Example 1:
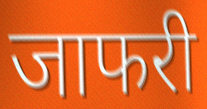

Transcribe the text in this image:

जाफरी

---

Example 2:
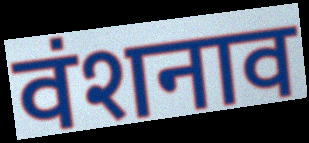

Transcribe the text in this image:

वंशनाव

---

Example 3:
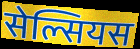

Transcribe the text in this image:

सेल्सियस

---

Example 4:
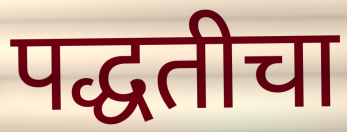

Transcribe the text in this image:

पद्धतीचा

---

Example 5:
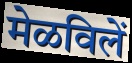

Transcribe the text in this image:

मेळविलें